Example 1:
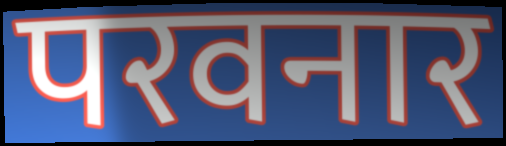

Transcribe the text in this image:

परवनार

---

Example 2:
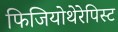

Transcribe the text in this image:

फिजियोथेरेपिस्ट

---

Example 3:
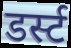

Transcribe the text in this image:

डर्स्ट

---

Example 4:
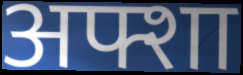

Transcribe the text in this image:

अफ्शा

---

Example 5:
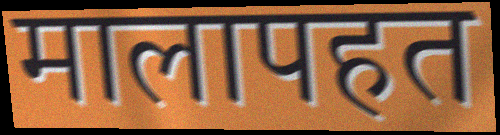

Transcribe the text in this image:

मालापहत